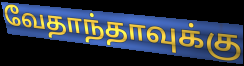
வேதாந்தாவுக்கு